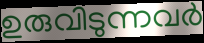
ഉരുവിടുന്നവർ